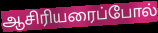
ஆசிரியரைப்போல்